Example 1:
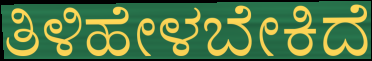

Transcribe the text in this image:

ತಿಳಿಹೇಳಬೇಕಿದೆ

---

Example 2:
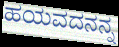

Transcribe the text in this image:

ಹಯವದನನ್ನ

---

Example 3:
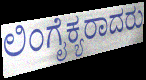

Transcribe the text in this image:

ಲಿಂಗೈಕ್ಯರಾದರು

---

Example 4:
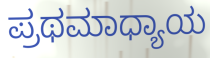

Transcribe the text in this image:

ಪ್ರಥಮಾಧ್ಯಾಯ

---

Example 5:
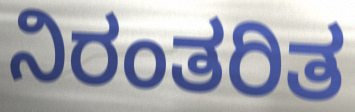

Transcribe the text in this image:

ನಿರಂತರಿತ